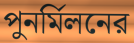
পুনর্মিলনের